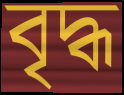
বৃদ্ধ